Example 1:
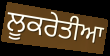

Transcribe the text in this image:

ਲੂਕਰੇਤੀਆ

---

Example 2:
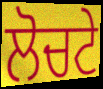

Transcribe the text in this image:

ਲੋਚਟੇ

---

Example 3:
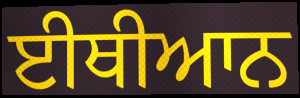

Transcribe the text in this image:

ਈਥੀਆਨ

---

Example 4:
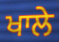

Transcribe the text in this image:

ਖਾਲੇ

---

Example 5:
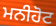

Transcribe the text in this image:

ਮਨੀਹੋਟ